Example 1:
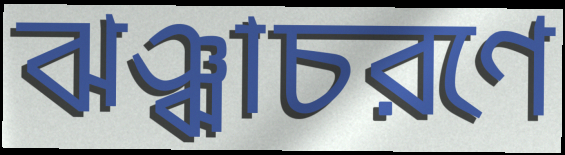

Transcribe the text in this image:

ঝঞ্ঝাচরণে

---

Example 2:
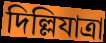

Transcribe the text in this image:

দিল্লিযাত্রা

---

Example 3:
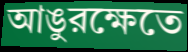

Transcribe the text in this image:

আঙুরক্ষেতে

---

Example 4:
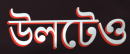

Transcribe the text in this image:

উলটেও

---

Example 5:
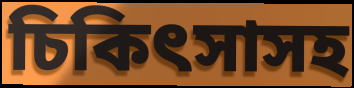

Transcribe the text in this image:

চিকিৎসাসহ